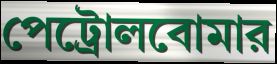
পেট্রোলবোমার